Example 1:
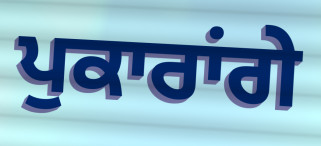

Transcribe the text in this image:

ਪੁਕਾਰਾਂਗੇ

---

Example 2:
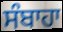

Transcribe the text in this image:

ਸੰਬਾਹਾ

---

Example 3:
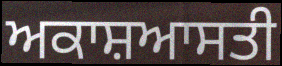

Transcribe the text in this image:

ਅਕਾਸ਼ਆਸਤੀ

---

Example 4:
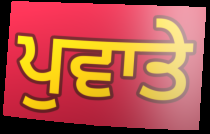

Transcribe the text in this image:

ਪੁਵਾਤੇ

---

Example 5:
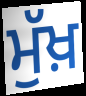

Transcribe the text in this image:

ਮੁੱਖ਼